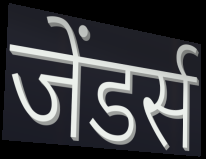
जेंडर्स